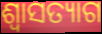
ଶ୍ବାସତ୍ୟାଗ